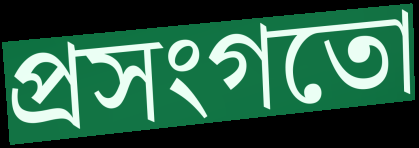
প্ৰসংগতো